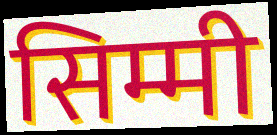
सिम्मी